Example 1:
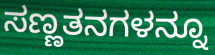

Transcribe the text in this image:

ಸಣ್ಣತನಗಳನ್ನೂ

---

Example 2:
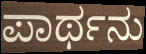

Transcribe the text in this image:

ಪಾರ್ಥನು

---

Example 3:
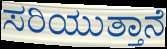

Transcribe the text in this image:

ಸರಿಯುತ್ತಾನೆ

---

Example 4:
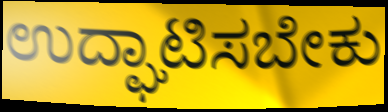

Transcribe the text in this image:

ಉದ್ಘಾಟಿಸಬೇಕು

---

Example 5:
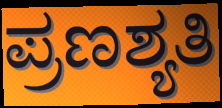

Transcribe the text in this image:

ಪ್ರಣಶ್ಯತಿ